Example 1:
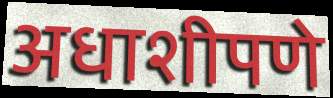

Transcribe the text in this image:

अधाशीपणे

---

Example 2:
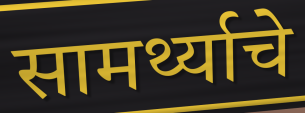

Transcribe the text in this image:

सामर्थ्याचे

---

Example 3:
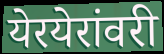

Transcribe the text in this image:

येरयेरांवरी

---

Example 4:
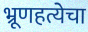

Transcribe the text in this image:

भ्रूणहत्येचा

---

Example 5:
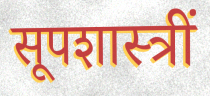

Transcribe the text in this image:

सूपशास्त्रीं